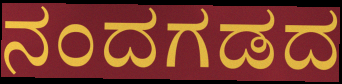
ನಂದಗಡದ